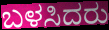
ಬಳಸಿದರು